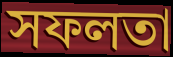
সফলতা